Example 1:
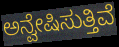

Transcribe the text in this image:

ಅನ್ವೇಷಿಸುತ್ತಿವೆ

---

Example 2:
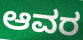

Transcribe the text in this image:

ಆವರ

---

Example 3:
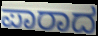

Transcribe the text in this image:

ಪಾರಾದ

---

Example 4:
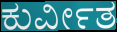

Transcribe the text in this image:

ಕುರ್ವೀತ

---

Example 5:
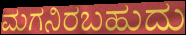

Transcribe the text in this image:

ಮಗನಿರಬಹುದು